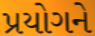
પ્રયોગને